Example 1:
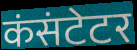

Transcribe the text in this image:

कंसंटेटर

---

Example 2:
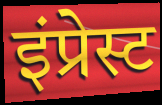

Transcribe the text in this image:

इंप्रेस्ट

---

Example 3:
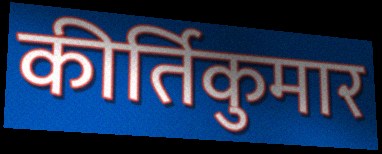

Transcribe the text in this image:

कीर्तिकुमार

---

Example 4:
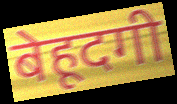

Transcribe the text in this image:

बेहूदगी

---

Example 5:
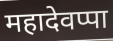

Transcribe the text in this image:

महादेवप्पा